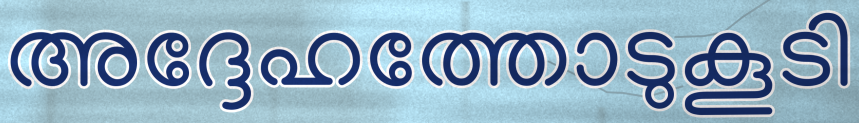
അദ്ദേഹത്തോടുകൂടി